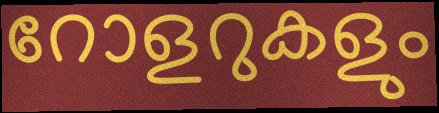
റോളറുകളും